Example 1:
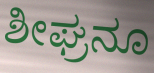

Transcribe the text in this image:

ಶೀಘ್ರನೂ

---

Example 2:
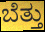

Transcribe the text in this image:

ಬೆತ್ತು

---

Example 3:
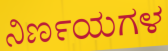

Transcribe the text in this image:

ನಿರ್ಣಯಗಳ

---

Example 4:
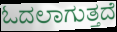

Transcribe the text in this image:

ಓದಲಾಗುತ್ತದೆ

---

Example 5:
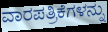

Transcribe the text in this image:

ವಾರಪತ್ರಿಕೆಗಳನ್ನು